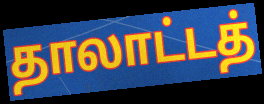
தாலாட்டத்